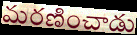
మరణించాడు